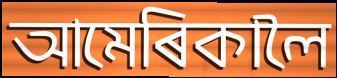
আমেৰিকালৈ